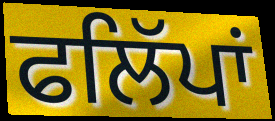
ਫਲਿੱਪਾਂ